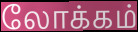
லோக்கம்